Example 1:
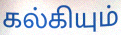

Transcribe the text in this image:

கல்கியும்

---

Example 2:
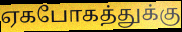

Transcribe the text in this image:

ஏகபோகத்துக்கு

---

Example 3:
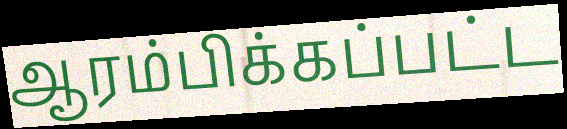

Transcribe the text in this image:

ஆரம்பிக்கப்பட்ட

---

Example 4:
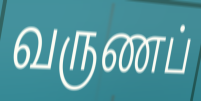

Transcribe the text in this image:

வருணப்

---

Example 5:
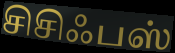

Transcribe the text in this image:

சிசிஃபஸ்